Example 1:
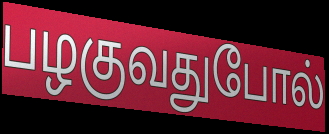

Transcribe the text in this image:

பழகுவதுபோல்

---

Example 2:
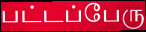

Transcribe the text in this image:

பட்டப்பேரு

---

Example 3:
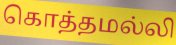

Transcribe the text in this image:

கொத்தமல்லி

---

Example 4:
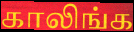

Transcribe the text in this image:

காலிங்க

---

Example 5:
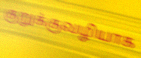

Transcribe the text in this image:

குறுக்குவழியாக